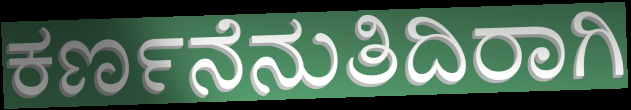
ಕರ್ಣನೆನುತಿದಿರಾಗಿ